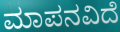
ಮಾಪನವಿದೆ